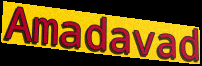
Amadavad